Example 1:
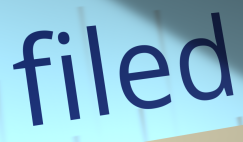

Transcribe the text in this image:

filed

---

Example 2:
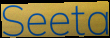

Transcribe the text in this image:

Seeta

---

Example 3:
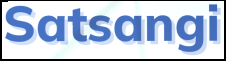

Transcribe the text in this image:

Satsangi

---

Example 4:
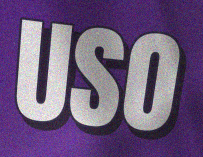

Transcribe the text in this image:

USO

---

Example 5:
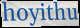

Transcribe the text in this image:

hoyithu